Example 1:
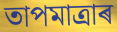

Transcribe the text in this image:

তাপমাত্ৰাৰ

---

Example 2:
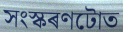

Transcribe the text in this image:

সংস্কৰণটোত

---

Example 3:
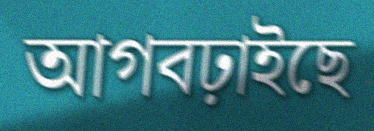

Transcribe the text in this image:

আগবঢ়াইছে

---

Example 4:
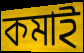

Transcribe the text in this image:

কমাই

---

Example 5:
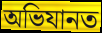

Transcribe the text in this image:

অভিযানত